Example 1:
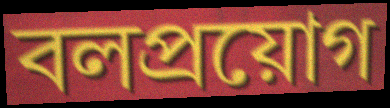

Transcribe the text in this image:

বলপ্রয়োগ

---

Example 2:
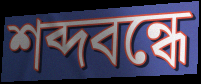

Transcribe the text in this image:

শব্দবন্ধে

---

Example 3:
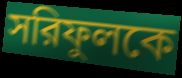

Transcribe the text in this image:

সরিফুলকে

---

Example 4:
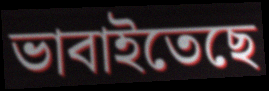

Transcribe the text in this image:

ভাবাইতেছে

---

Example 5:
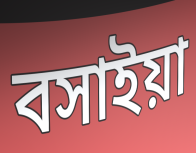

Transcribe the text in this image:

বসাইয়া